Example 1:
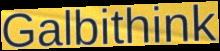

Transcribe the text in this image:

Galbithink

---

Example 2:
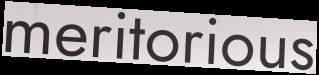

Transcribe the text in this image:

meritorious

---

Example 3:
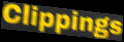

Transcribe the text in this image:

Clippings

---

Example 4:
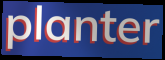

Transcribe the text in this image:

planter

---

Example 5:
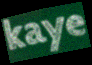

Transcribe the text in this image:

kaye